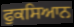
ਫੁਕਸਿਆਨ